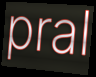
pral